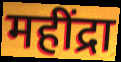
महींद्रा